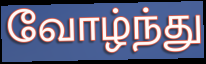
வோழ்ந்து